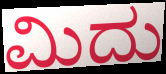
ಮಿದು